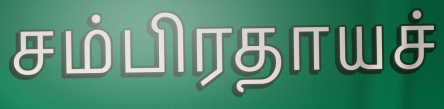
சம்பிரதாயச்